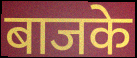
बाजके